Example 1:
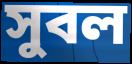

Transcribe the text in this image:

সুবল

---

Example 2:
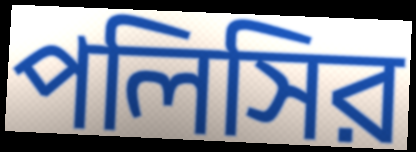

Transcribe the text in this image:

পলিসির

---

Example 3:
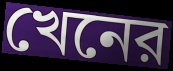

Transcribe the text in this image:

খেনের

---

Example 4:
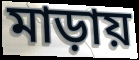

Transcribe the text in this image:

মাড়ায়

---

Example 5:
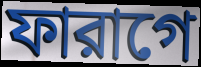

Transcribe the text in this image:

ফারাগে